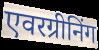
एवरग्रीनिंग